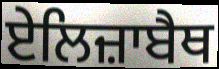
ਏਲਿਜ਼ਾਬੈਥ